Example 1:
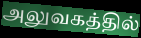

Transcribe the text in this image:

அலுவகத்தில்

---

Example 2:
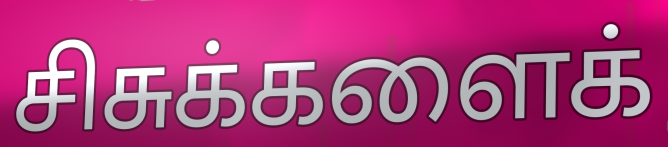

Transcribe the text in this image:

சிசுக்களைக்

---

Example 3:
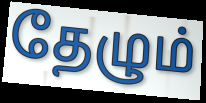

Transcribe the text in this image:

தேழும்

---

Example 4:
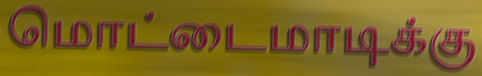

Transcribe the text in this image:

மொட்டைமாடிக்கு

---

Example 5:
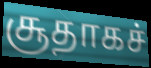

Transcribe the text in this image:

சூதாகச்